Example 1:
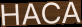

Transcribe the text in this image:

HACA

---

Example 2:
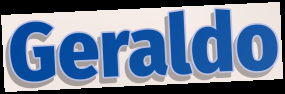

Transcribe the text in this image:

Geraldo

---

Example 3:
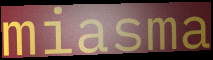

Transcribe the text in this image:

miasma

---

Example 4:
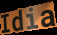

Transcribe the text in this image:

Idia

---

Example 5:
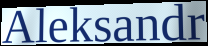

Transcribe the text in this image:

Aleksandr